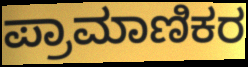
ಪ್ರಾಮಾಣಿಕರ